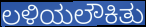
ಲಳಿಯಲೌಕಿತು